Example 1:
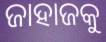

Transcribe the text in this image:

ଜାହାଜକୁ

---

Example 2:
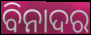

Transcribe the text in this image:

ବିନାଦର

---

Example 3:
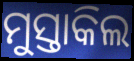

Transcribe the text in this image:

ମୁସ୍ତାକିଲ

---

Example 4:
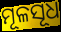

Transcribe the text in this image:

ମୂଳସୂଧ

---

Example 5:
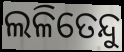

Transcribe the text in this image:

ଲଳିତେନ୍ଦୁ